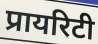
प्रायरिटी